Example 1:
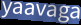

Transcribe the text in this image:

yaavaga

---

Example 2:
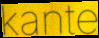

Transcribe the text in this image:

kante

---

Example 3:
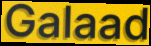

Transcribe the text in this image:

Galaad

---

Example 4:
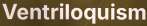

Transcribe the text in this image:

Ventriloquism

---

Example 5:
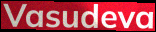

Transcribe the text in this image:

Vasudeva